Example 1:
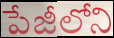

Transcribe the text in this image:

పేజీలోని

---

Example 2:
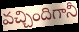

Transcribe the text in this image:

వచ్చిందిగానీ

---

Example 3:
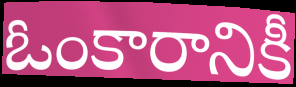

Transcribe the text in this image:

ఓంకారానికీ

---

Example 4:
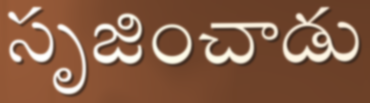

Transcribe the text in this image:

సృజించాడు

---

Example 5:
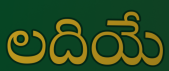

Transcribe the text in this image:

లదియే